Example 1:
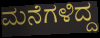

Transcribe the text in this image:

ಮನೆಗಳಿದ್ದ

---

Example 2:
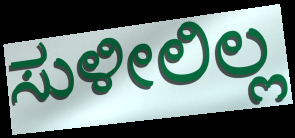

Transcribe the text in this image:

ಸುಳೀಲಿಲ್ಲ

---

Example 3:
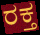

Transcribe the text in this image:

ರಕ್ತ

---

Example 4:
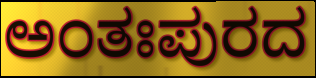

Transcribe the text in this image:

ಅಂತಃಪುರದ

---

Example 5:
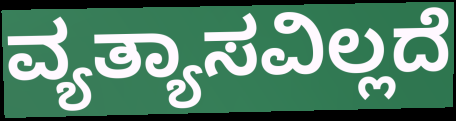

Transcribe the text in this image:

ವ್ಯತ್ಯಾಸವಿಲ್ಲದೆ